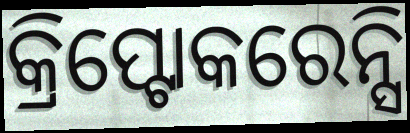
କ୍ରିପ୍ଟୋକରେନ୍ସି